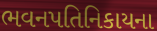
ભવનપતિનિકાયના